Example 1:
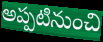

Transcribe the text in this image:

అప్పటినుంచి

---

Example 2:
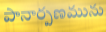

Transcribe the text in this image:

పానార్పణమును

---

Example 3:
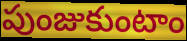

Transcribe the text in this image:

పుంజుకుంటాం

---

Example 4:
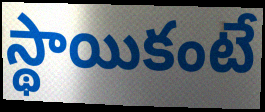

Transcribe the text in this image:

స్థాయికంటే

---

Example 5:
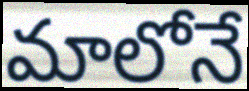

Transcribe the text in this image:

మాలోనే